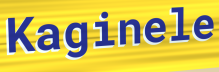
Kaginele